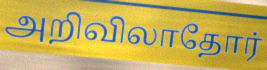
அறிவிலாதோர்